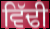
ਵਿੱਢੀ